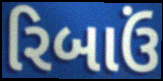
રિબાઉં